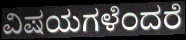
ವಿಷಯಗಳೆಂದರೆ